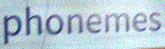
phonemes